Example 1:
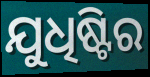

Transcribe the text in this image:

ଯୁଧିଷ୍ଟିର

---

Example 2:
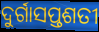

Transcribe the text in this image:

ଦୁର୍ଗାସପ୍ତଶତୀ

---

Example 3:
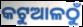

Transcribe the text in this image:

କଟୁଆଳଠୁଁ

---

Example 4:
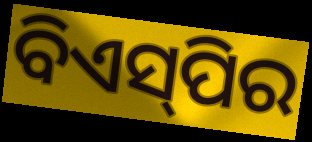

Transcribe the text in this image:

ବିଏସ୍‌ପିର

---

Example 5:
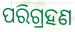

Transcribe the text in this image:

ପରିଗ୍ରହଣ